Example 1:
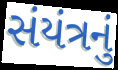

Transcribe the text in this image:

સંયંત્રનું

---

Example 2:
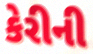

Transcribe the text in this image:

કેરીની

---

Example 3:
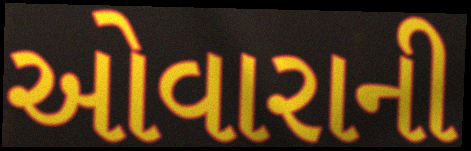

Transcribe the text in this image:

ઓવારાની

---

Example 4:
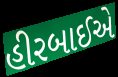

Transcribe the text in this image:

હીરબાઈએ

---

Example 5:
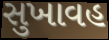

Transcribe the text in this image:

સુખાવહ